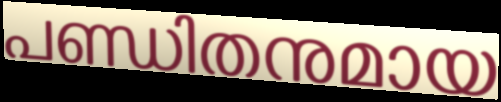
പണ്ഡിതനുമായ